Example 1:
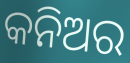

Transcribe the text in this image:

କନିଅର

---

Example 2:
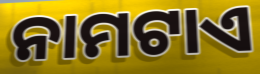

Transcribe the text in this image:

ନାମଟାଏ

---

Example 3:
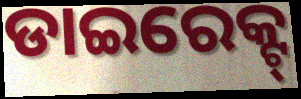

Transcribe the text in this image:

ଡାଇରେକ୍ଟ୍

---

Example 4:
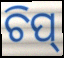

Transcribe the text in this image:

ଚିପ୍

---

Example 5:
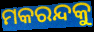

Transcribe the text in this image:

ମକରନ୍ଦକୁ